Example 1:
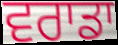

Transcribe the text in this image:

ਵਰਾਡਾ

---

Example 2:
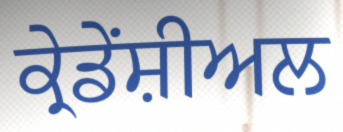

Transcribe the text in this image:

ਕ੍ਰੇਡੇਂਸ਼ੀਅਲ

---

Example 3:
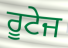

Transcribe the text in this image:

ਰੂਟੇਜ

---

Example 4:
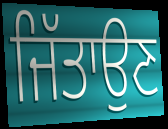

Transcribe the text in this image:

ਜਿੱਤਾਉਣ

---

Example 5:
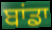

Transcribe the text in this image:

ਬਾਂਡਾ